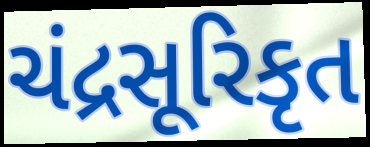
ચંદ્રસૂરિકૃત